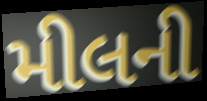
મીલની